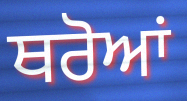
ਥਰੋਆਂ